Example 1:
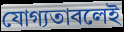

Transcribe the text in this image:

যোগ্যতাবলেই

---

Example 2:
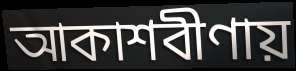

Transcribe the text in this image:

আকাশবীণায়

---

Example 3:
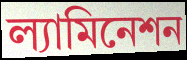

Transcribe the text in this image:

ল্যামিনেশন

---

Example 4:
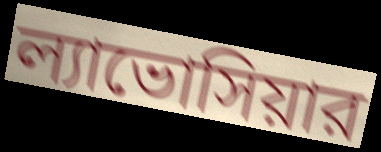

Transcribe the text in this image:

ল্যাভোসিয়ার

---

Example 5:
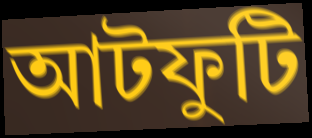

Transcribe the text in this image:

আটফুটি